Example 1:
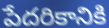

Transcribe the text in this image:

పేదరికానికి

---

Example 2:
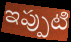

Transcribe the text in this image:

ఇప్పుటి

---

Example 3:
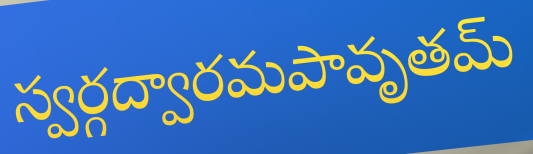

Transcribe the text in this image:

స్వర్గద్వారమపావృతమ్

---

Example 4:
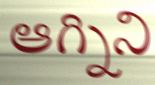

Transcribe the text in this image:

ఆగ్నిని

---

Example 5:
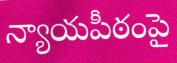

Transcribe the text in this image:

న్యాయపీఠంపై